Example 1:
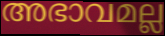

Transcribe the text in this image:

അഭാവമല്ല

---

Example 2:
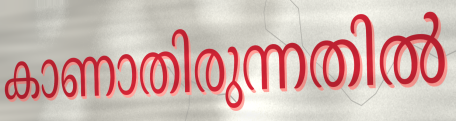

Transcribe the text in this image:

കാണാതിരുന്നതിൽ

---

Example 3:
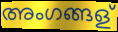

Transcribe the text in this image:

അംഗങ്ങള്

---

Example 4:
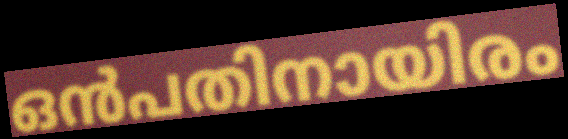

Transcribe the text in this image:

ഒൻപതിനായിരം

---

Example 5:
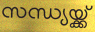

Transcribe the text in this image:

സന്ധ്യയ്ക്ക്